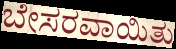
ಬೇಸರವಾಯಿತು